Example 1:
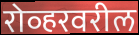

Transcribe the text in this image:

रोव्हरवरील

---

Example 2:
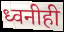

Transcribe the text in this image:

ध्वनीही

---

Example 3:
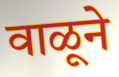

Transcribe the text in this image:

वाळूने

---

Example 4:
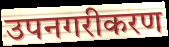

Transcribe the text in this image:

उपनगरीकरण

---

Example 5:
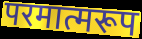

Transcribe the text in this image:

परमात्मरूप